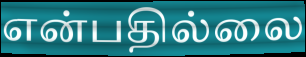
என்பதில்லை